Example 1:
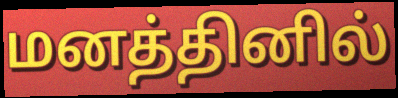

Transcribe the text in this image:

மனத்தினில்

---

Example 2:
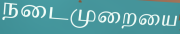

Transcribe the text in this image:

நடைமுறையை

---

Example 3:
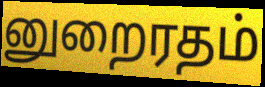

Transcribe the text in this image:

னுறைரதம்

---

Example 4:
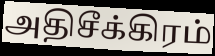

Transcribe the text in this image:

அதிசீக்கிரம்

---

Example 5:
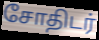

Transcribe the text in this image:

சோதிடர்